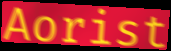
Aorist